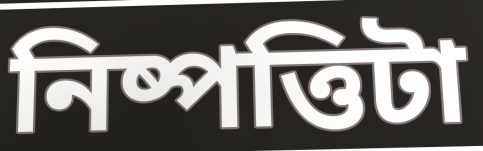
নিষ্পত্তিটা